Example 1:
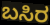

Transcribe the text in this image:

ಬಸಿರ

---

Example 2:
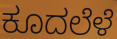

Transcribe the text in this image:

ಕೂದಲೆಳೆ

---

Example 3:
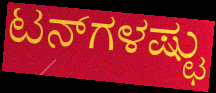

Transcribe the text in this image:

ಟನ್‌ಗಳಷ್ಟು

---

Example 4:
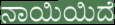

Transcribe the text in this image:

ನಾಯಿಯಿದೆ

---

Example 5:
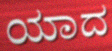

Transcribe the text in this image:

ಯಾದ